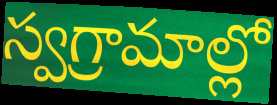
స్వగ్రామాల్లో